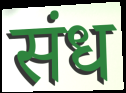
संध